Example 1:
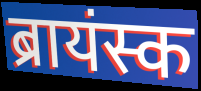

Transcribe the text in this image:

ब्रायंस्क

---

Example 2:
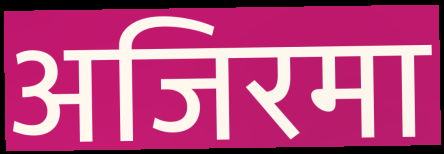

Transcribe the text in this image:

अजिरमा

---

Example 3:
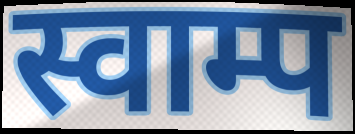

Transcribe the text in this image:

स्वाम्प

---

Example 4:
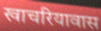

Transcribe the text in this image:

खाचरियावास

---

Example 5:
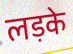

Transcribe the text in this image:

लड़के